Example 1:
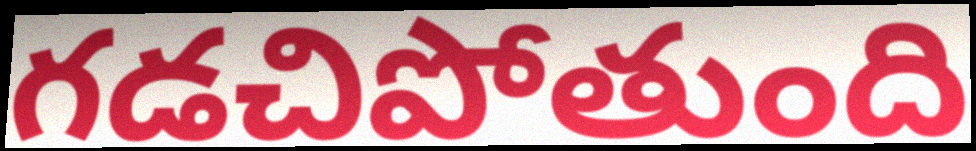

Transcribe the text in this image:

గడచిపోతుంది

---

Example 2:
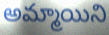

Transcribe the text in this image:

అమ్మాయిని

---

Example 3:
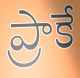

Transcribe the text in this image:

ప్రాకే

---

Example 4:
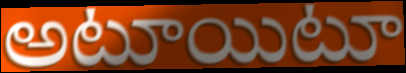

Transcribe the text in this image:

అటూయిటూ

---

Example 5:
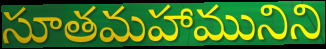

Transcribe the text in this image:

సూతమహామునిని